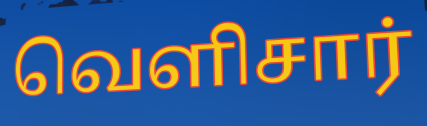
வெளிசார்